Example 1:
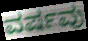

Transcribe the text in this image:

ವರ್ಷವು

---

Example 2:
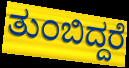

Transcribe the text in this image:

ತುಂಬಿದ್ದರೆ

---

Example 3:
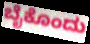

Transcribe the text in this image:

ಬೈಕೊಂದು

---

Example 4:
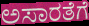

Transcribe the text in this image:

ಅಸಾರತೆಗೆ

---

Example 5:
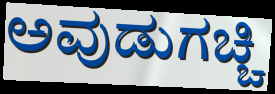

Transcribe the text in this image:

ಅವುಡುಗಚ್ಚಿ